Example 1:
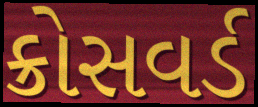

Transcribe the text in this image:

ક્રોસવર્ડ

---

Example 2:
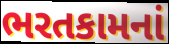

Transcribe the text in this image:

ભરતકામનાં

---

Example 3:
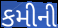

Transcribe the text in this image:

કમીની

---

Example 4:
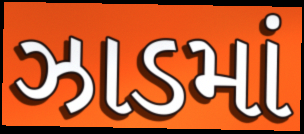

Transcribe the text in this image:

ઝાડમાં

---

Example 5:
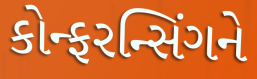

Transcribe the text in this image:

કોન્ફરન્સિંગને